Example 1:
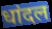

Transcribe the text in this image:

धांदल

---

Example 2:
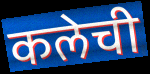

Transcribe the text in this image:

कलेची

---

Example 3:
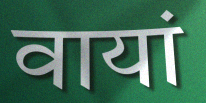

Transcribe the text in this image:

वायां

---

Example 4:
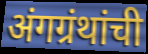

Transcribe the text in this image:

अंगग्रंथांची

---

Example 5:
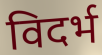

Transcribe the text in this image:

विदर्भ